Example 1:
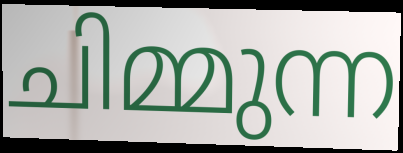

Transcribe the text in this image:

ചിമ്മുന്ന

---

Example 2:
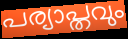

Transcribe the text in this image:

പര്യാപ്തവും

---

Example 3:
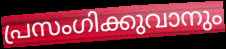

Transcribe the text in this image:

പ്രസംഗിക്കുവാനും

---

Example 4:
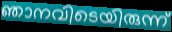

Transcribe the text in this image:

ഞാനവിടെയിരുന്ന്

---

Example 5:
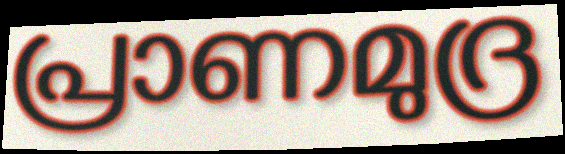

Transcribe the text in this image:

പ്രാണമുദ്ര